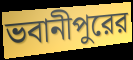
ভবানীপুরের